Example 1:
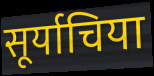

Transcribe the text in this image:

सूर्याचिया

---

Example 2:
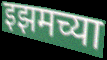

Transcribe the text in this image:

इझमच्या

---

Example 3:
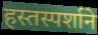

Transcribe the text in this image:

हस्तस्पर्शाने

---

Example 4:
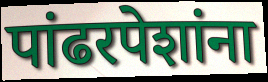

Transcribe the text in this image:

पांढरपेशांना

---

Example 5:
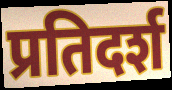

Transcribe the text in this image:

प्रतिदर्श